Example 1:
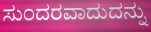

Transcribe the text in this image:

ಸುಂದರವಾದುದನ್ನು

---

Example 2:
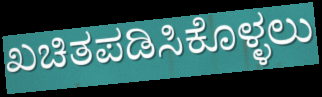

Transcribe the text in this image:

ಖಚಿತಪಡಿಸಿಕೊಳ್ಳಲು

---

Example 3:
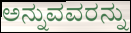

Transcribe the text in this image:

ಅನ್ನುವವರನ್ನು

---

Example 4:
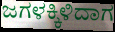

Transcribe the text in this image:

ಜಗಳಕ್ಕಿಳಿದಾಗ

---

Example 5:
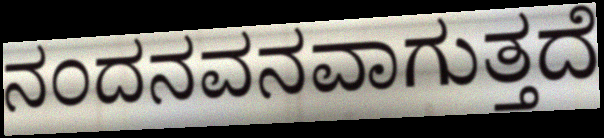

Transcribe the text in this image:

ನಂದನವನವಾಗುತ್ತದೆ